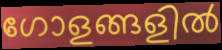
ഗോളങ്ങളിൽ